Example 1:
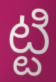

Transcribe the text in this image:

ట్టి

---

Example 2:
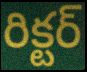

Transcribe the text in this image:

రిక్టర్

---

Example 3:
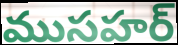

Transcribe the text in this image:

ముసహర్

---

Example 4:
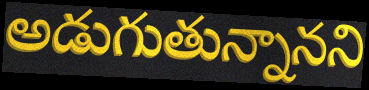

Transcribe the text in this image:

అడుగుతున్నానని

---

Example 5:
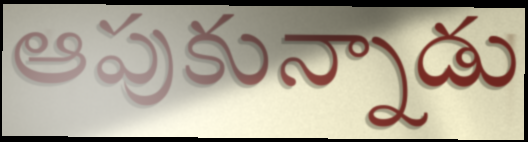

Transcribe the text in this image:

ఆపుకున్నాడు